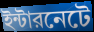
ইন্টারনেটে